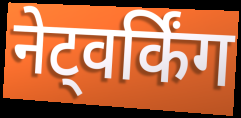
नेट्वर्किंग